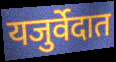
यजुर्वेदात